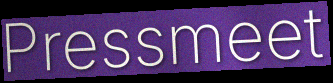
Pressmeet